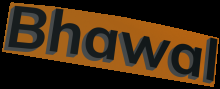
Bhawal